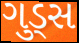
ગુડ્સ